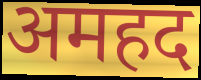
अमहद